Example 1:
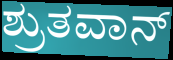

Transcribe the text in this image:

ಶ್ರುತವಾನ್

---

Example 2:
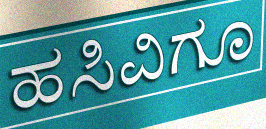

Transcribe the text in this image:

ಹಸಿವಿಗೂ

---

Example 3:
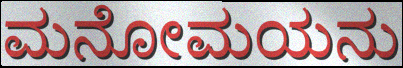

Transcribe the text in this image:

ಮನೋಮಯನು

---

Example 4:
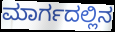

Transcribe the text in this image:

ಮಾರ್ಗದಲ್ಲಿನ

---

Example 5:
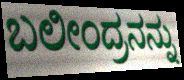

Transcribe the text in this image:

ಬಲೀಂದ್ರನನ್ನು